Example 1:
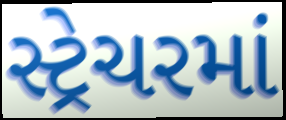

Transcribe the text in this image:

સ્ટ્રેચરમાં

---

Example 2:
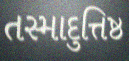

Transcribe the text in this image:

તસ્માદુત્તિષ્ઠ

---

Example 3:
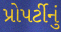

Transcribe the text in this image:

પ્રોપર્ટીનું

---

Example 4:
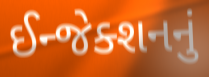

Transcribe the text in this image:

ઈન્જેક્શનનું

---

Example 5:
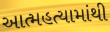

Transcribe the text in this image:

આત્મહત્યામાંથી